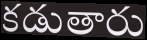
కడుతారు